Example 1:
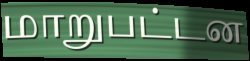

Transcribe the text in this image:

மாறுபட்டன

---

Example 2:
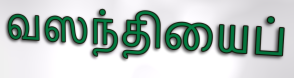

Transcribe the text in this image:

வஸந்தியைப்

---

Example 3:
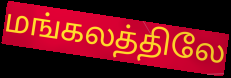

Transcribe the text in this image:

மங்கலத்திலே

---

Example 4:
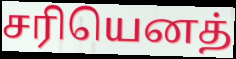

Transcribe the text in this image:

சரியெனத்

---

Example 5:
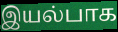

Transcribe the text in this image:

இயல்பாக